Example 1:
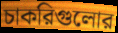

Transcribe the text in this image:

চাকরিগুলোর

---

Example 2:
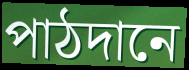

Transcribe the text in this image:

পাঠদানে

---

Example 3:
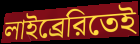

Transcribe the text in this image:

লাইব্রেরিতেই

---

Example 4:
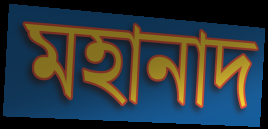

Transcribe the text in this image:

মহানাদ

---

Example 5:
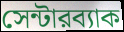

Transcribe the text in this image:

সেন্টারব্যাক